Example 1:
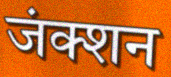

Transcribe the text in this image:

जंक्शन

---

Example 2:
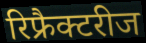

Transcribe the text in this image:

रिफ्रैक्टरीज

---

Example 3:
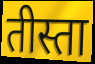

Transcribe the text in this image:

तीस्ता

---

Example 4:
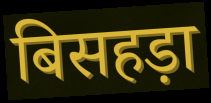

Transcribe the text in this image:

बिसहड़ा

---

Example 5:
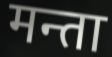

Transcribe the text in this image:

मन्ता